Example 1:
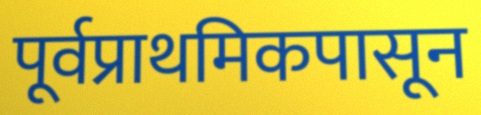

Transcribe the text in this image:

पूर्वप्राथमिकपासून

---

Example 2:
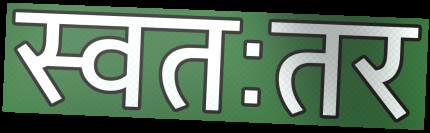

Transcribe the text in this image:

स्वतःतर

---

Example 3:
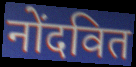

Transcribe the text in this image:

नोंदवित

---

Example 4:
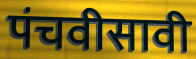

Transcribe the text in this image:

पंचवीसावी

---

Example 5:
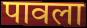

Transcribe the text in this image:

पावला